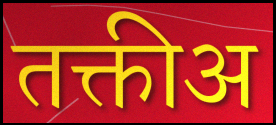
तक्तीअ